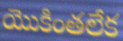
యొకింతలేక